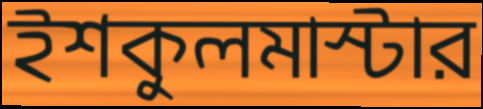
ইশকুলমাস্টার